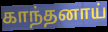
காந்தனாய்